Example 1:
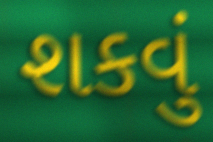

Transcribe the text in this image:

શકવું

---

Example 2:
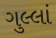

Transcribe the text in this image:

ગુલ્લાં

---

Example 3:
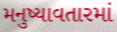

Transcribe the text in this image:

મનુષ્યાવતારમાં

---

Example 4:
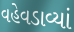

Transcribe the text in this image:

વહેવડાવ્યાં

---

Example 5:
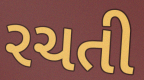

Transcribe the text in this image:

રચતી